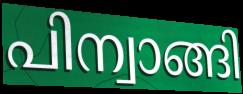
പിന്വാങ്ങി